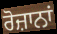
ਰੋਜ਼ਾਨਾਂ